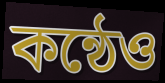
কন্ঠেও